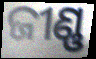
ଜୀଣ୍ଣ